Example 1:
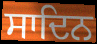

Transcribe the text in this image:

ਸਾਦਿਨ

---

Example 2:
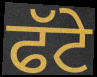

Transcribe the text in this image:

ਫੱਟੇ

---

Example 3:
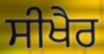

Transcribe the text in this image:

ਸੀਖੈਰ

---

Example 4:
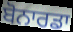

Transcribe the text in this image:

ਬੋਨਾਰਡਾ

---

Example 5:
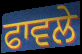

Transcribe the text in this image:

ਫਾਵਲੇ